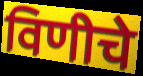
विणीचे